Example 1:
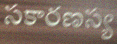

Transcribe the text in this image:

సకారణస్య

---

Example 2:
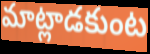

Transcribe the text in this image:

మాట్లాడకుంట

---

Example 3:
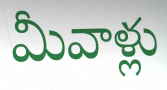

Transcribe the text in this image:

మీవాళ్లు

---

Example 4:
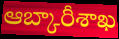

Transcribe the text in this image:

ఆబ్కారీశాఖ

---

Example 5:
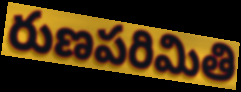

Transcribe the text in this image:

రుణపరిమితి